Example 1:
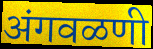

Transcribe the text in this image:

अंगवळणी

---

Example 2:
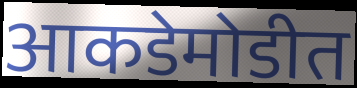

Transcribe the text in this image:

आकडेमोडीत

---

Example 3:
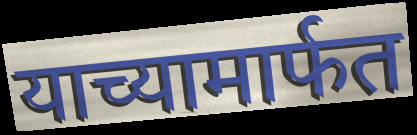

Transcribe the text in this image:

याच्यामार्फत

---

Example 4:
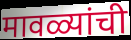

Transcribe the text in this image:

मावळ्यांची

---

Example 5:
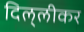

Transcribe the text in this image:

दिल्लीकर